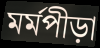
মর্মপীড়া